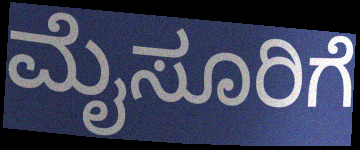
ಮೈಸೂರಿಗೆ